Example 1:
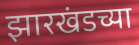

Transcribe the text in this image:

झारखंडच्या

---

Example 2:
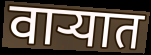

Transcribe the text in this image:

वाऱ्यात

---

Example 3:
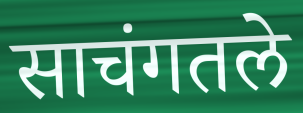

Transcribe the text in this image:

साचंगतले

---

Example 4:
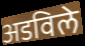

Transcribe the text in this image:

अडविले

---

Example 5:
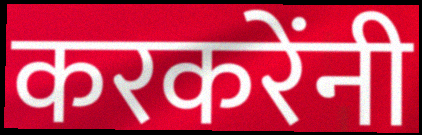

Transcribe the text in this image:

करकरेंनी